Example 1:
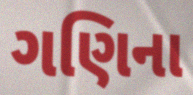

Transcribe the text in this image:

ગણિના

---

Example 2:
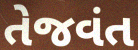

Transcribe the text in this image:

તેજવંત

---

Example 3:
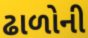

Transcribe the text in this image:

ઢાળોની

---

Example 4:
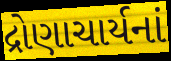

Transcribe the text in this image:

દ્રોણાચાર્યનાં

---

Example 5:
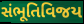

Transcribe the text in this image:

સંભૂતિવિજય